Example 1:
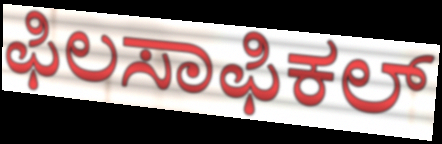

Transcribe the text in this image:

ಫಿಲಸಾಫಿಕಲ್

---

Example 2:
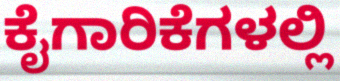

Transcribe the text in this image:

ಕೈಗಾರಿಕೆಗಳಲ್ಲಿ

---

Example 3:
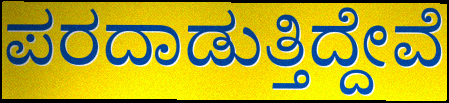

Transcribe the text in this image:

ಪರದಾಡುತ್ತಿದ್ದೇವೆ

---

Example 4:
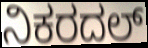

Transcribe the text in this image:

ನಿಕರದಲ್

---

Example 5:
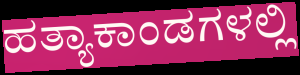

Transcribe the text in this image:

ಹತ್ಯಾಕಾಂಡಗಳಲ್ಲಿ